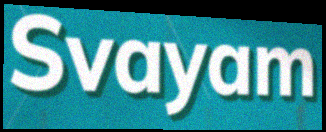
Svayam